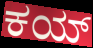
ಕಯ್